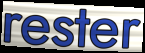
rester